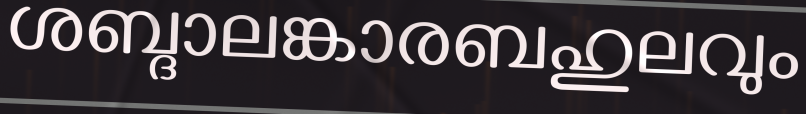
ശബ്ദാലങ്കാരബഹുലവും